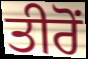
ਤੀਰੋਂ